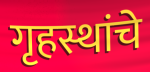
गृहस्थांचे